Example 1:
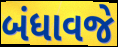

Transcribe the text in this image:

બંધાવજે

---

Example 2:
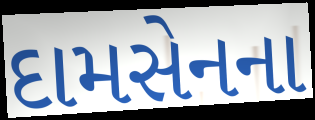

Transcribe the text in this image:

દામસેનના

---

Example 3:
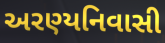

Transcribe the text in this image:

અરણ્યનિવાસી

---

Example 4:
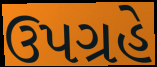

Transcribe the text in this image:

ઉપગ્રહે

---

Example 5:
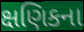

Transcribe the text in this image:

ક્ષણિકના